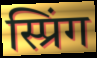
स्प्रिंग